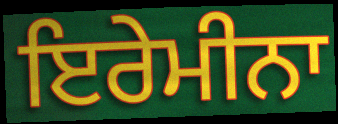
ਇਰੇਮੀਨਾ